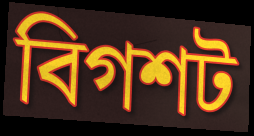
বিগশট